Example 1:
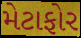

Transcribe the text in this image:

મેટાફોર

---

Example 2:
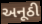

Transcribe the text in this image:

અનૂઠી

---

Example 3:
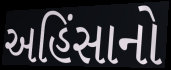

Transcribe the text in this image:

અહિંસાનો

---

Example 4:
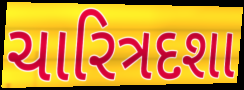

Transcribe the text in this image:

ચારિત્રદશા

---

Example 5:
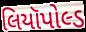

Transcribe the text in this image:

લિયૉપોલ્ડ